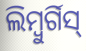
ଲିମ୍ବୁର୍ଗିସ୍